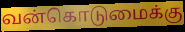
வன்கொடுமைக்கு